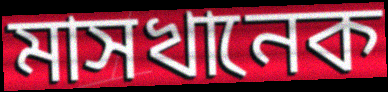
মাসখানেক